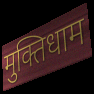
मुक्तिधाम